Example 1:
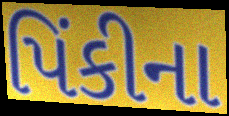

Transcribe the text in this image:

પિંકીના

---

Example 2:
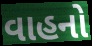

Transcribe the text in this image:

વાહનો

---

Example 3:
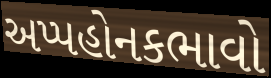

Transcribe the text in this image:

અપ્પહોનકભાવો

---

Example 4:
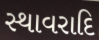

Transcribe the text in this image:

સ્થાવરાદિ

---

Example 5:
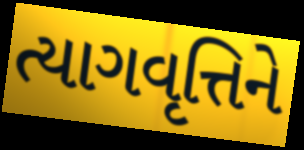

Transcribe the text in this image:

ત્યાગવૃત્તિને